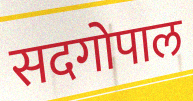
सदगोपाल